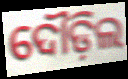
ଦୌଡ଼ିଲ